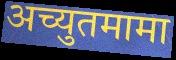
अच्युतमामा